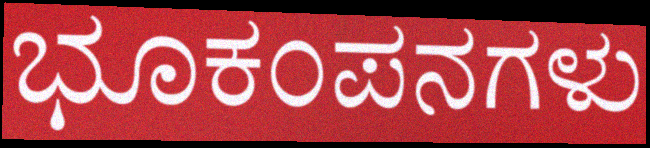
ಭೂಕಂಪನಗಳು